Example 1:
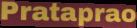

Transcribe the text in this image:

Prataprao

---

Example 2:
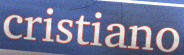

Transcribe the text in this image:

cristiano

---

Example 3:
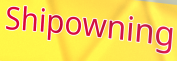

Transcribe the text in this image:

Shipowning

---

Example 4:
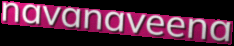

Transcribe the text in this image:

navanaveena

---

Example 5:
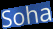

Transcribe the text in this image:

Soha